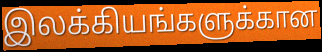
இலக்கியங்களுக்கான